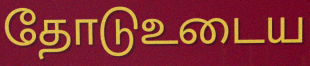
தோடுஉடைய